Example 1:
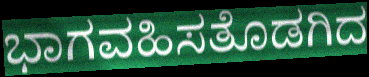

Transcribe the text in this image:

ಭಾಗವಹಿಸತೊಡಗಿದ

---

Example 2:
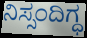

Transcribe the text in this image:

ನಿಸ್ಸಂದಿಗ್ಧ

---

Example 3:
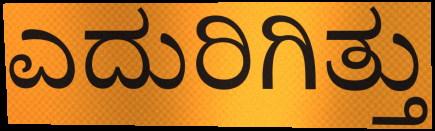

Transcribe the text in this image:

ಎದುರಿಗಿತ್ತು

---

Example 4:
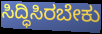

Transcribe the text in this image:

ಸಿದ್ಧಿಸಿರಬೇಕು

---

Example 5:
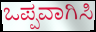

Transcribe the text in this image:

ಒಪ್ಪವಾಗಿಸಿ